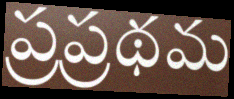
ప్రప్రథమ